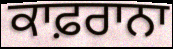
ਕਾਫ਼ਰਾਨਾ